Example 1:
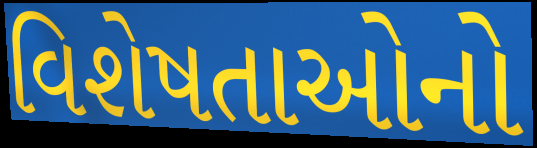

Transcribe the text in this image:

વિશેષતાઓનો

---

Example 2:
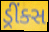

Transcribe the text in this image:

ડ્રીંક્સ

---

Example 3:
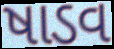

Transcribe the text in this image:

ષાડવ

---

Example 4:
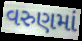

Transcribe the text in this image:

વરુણમાં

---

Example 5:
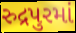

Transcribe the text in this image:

રુદ્રપુરમાં